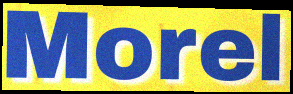
Morel